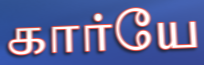
கார்யே